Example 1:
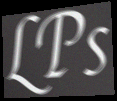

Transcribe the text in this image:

LPs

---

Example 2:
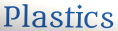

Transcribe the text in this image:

Plastics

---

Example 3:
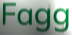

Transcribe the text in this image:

Fagg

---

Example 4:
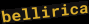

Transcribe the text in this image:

bellirica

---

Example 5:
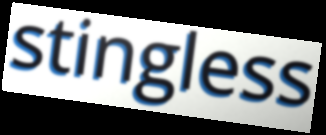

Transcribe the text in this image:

stingless